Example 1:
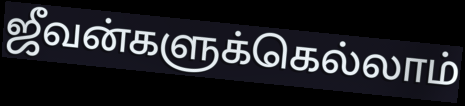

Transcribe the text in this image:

ஜீவன்களுக்கெல்லாம்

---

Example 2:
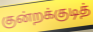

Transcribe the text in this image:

குன்றக்குடித்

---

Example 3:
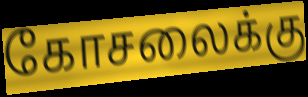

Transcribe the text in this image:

கோசலைக்கு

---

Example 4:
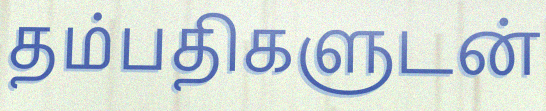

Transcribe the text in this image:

தம்பதிகளுடன்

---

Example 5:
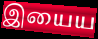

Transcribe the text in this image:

இயைய